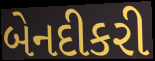
બેનદીકરી